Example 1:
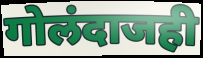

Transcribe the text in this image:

गोलंदाजही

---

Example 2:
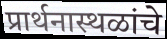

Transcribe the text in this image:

प्रार्थनास्थळांचे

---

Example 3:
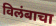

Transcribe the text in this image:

विलंबाचा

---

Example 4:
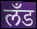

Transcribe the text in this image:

लँड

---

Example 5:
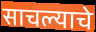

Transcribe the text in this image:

साचल्याचे